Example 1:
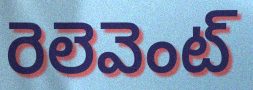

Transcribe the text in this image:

రెలెవెంట్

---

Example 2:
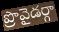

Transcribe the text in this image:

ప్రొవైడర్గా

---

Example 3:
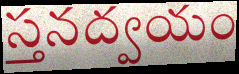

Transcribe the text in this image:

స్తనద్వయం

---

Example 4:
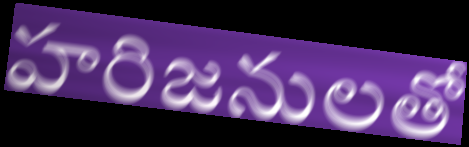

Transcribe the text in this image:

హరిజనులతో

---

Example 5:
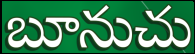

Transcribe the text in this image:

బూనుచు